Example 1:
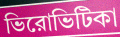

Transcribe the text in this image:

ভিরোভিটিকা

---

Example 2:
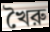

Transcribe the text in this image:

খৈরু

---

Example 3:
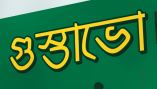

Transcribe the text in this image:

গুস্তাভো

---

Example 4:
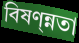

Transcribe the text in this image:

বিষণ্ন্নতা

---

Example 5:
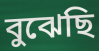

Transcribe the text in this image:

বুঝেছি